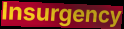
Insurgency